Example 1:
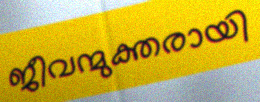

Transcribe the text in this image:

ജീവന്മുക്തരായി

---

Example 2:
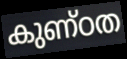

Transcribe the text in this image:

കുണ്ഠത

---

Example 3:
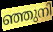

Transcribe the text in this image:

ഞ്ഞുനി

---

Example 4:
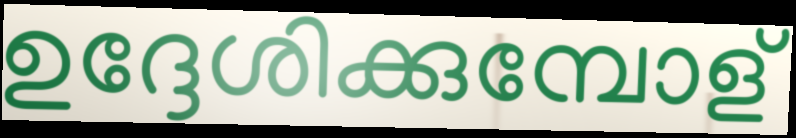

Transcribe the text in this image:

ഉദ്ദേശിക്കുമ്പോള്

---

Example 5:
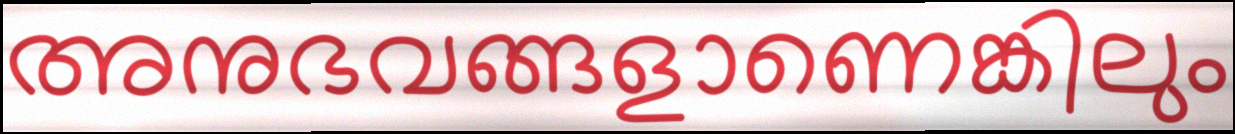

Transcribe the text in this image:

അനുഭവങ്ങളാണെങ്കിലും